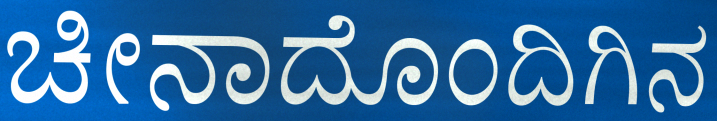
ಚೀನಾದೊಂದಿಗಿನ